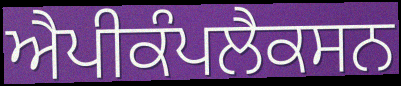
ਐਪੀਕੰਪਲੈਕਸਨ